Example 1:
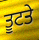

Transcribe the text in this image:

ਤੂਟਤੇ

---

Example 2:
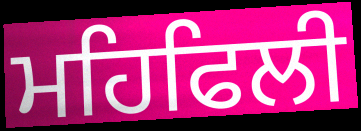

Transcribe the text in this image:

ਮਹਿਫਿਲੀ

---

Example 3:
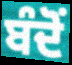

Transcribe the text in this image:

ਬੰਦੋਂ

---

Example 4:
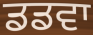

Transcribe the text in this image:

ਡਡਵਾ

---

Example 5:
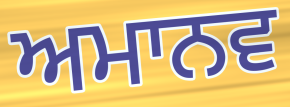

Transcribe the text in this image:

ਅਮਾਨਵ